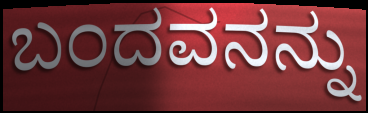
ಬಂದವನನ್ನು